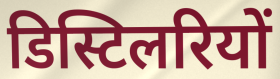
डिस्टिलरियों